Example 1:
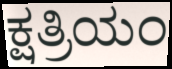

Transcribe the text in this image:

ಕ್ಷತ್ರಿಯಂ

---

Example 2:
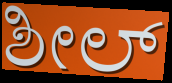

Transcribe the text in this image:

ಶೀಲ್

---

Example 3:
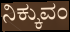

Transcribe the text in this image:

ನಿಕ್ಕುವಂ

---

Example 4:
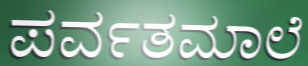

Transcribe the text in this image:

ಪರ್ವತಮಾಲೆ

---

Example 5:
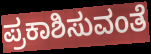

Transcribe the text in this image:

ಪ್ರಕಾಶಿಸುವಂತೆ